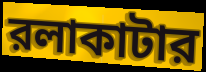
রলাকাটার